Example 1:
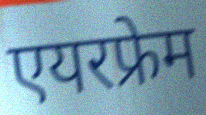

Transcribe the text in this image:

एयरफ्रेम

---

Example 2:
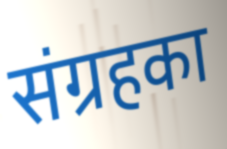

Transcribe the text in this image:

संग्रहका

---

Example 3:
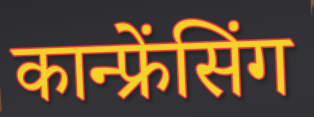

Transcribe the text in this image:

कान्फ्रेंसिंग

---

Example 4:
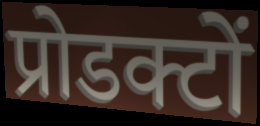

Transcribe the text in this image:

प्रोडक्टों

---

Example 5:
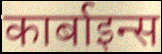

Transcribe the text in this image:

कार्बाइन्स